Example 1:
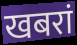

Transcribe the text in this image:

खबरां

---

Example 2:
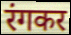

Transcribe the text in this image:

रंगकर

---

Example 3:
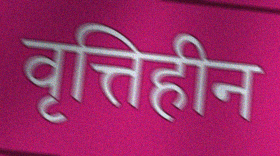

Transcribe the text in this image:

वृत्तिहीन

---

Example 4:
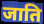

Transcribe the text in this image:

जाति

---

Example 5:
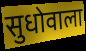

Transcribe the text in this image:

सुधोवाला